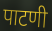
पाटणी